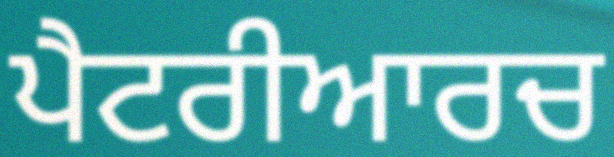
ਪੈਟਰੀਆਰਚ